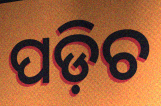
ପଡ଼ିଚ